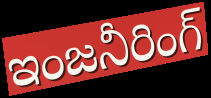
ఇంజనీరింగ్